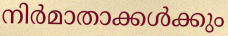
നിർമാതാക്കൾക്കും